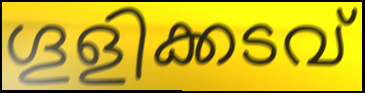
ഗൂളിക്കടവ്